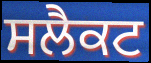
ਸਲੈਕਟ